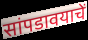
सांपडावयाचें